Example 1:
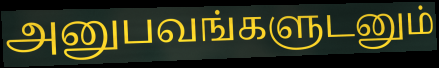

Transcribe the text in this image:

அனுபவங்களுடனும்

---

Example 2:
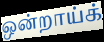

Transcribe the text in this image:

ஒன்றாய்க்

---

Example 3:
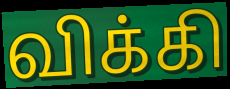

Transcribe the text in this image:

விக்கி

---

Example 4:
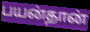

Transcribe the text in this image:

பயன்தான்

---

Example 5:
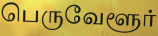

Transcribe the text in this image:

பெருவேளூர்